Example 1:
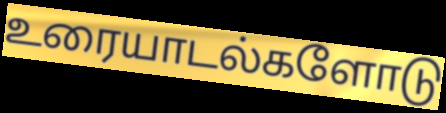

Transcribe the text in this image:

உரையாடல்களோடு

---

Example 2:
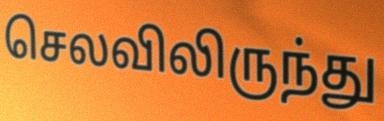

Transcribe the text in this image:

செலவிலிருந்து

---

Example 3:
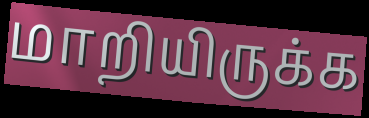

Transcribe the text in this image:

மாறியிருக்க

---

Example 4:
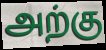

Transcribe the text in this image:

அற்கு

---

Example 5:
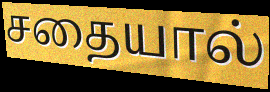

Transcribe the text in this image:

சதையால்